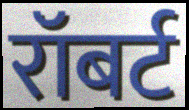
रॉबर्ट